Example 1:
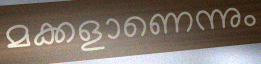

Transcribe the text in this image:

മക്കളാണെന്നും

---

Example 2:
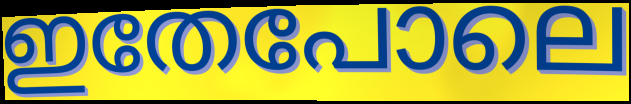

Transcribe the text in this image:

ഇതേപോലെ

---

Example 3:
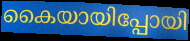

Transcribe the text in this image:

കൈയായിപ്പോയി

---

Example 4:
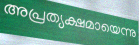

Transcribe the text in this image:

അപ്രത്യക്ഷമായെന്നു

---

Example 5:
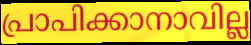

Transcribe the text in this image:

പ്രാപിക്കാനാവില്ല